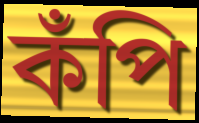
কঁপি